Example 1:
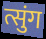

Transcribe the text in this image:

त्सुंग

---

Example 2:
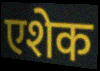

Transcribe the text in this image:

एशेक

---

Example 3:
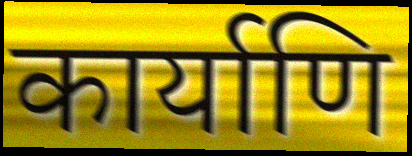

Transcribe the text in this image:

कार्याणि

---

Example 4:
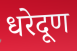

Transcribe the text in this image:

धरेदूण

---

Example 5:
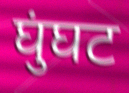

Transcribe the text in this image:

घुंघट